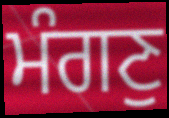
ਮੰਗਣੁ